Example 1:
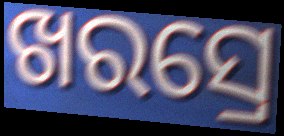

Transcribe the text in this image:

ଖରସ୍ରେ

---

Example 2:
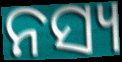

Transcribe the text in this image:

ନସ୍ୟ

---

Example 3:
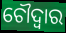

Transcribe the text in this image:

ଚୌଦ୍ଵାର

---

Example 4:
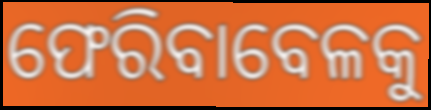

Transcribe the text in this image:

ଫେରିବାବେଳକୁ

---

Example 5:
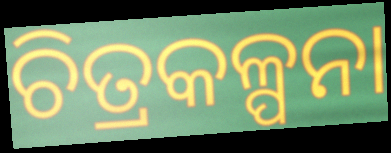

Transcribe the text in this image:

ଚିତ୍ରକଳ୍ପନା